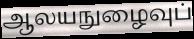
ஆலயநுழைவுப்